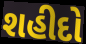
શહીદો